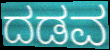
ದಡವ